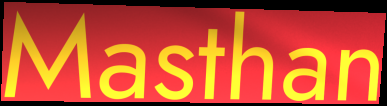
Masthan